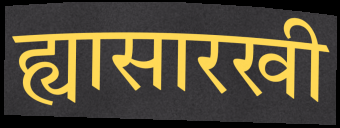
ह्यासारखी